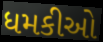
ધમકીઓ